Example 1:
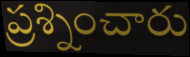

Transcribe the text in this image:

ప్రశ్నించారు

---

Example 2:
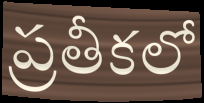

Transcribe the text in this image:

ప్రతీకలో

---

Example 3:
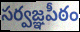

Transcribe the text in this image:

సర్వజ్ఞపీఠం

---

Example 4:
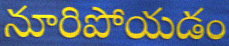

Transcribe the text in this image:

నూరిపోయడం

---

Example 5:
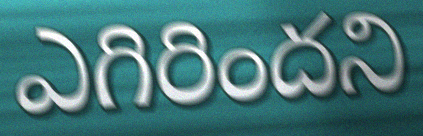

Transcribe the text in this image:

ఎగిరిందని